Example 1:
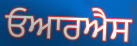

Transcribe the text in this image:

ਓਆਰਐਸ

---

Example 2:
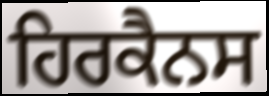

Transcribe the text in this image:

ਹਿਰਕੈਨਸ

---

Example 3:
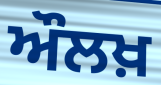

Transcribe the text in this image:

ਔਲਖ਼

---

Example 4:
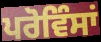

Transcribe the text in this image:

ਪਰੋਵਿੰਸਾਂ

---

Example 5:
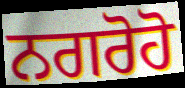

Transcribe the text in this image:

ਨਗਰੋਹੋ